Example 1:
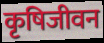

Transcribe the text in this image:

कृषिजीवन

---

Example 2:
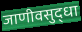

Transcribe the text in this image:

जाणीवसुद्धा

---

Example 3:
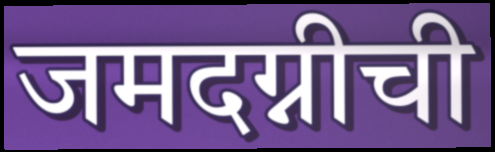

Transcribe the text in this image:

जमदग्नीची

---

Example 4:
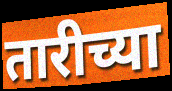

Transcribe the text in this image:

तारीच्या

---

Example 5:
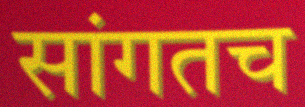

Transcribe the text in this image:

सांगतच